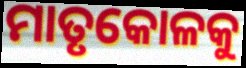
ମାତୃକୋଳକୁ